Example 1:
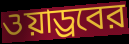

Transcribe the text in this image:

ওয়াড্রবের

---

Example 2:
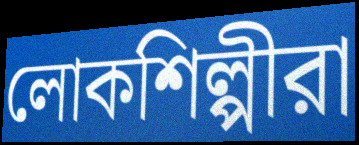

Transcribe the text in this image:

লোকশিল্পীরা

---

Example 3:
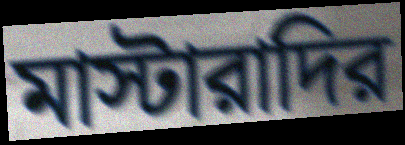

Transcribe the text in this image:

মাস্টারাদির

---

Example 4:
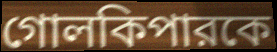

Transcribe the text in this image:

গোলকিপারকে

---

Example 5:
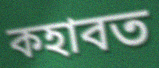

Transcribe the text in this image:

কহাবত